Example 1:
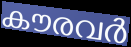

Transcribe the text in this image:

കൗരവർ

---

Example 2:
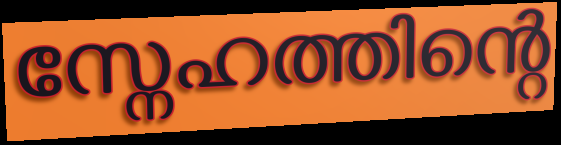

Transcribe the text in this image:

സ്നേഹത്തിന്റെ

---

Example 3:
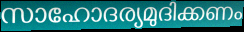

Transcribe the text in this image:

സാഹോദര്യമുദിക്കണം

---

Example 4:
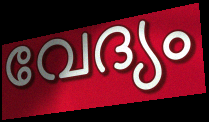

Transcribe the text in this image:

വേദ്യം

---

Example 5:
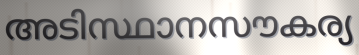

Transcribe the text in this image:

അടിസ്ഥാനസൗകര്യ